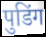
पुडिंग